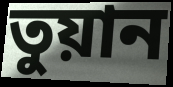
তুয়ান